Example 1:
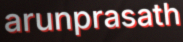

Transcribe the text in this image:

arunprasath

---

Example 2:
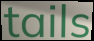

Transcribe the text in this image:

tails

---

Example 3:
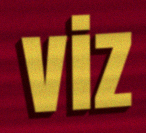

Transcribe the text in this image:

viz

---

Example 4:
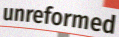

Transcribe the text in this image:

unreformed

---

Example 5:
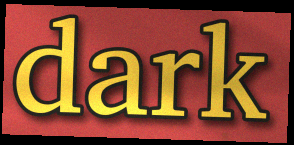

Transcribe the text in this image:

dark